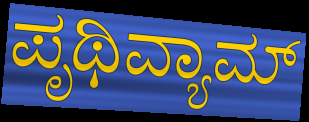
ಪೃಥಿವ್ಯಾಮ್